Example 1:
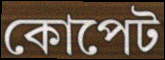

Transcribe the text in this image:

কোপেট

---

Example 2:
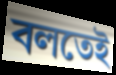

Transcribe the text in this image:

বলতেই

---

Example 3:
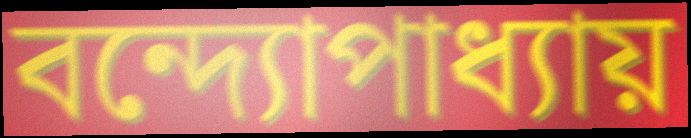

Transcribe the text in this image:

বন্দ্যোপাধ্যায়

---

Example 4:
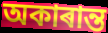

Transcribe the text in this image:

অকাৰান্ত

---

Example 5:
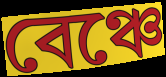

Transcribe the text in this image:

বেঞ্চে